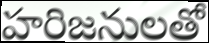
హరిజనులతో